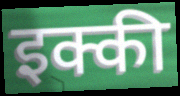
इक्की